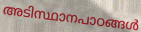
അടിസ്ഥാനപാഠങ്ങൾ